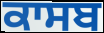
ਕਾਸਬ